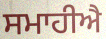
ਸਮਾਹੀਐ